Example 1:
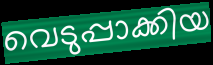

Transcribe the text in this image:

വെടുപ്പാക്കിയ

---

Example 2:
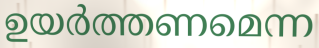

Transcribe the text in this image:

ഉയർത്തണമെന്ന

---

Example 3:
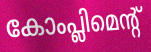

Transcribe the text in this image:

കോംപ്ലിമെന്റ്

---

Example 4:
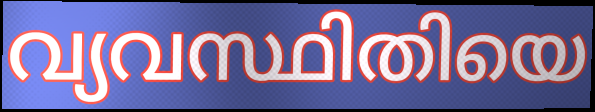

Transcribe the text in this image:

വ്യവസ്ഥിതിയെ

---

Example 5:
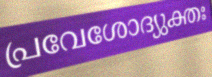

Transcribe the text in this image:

പ്രവേശോദ്യുക്തഃ